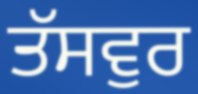
ਤੱਸਵੁਰ